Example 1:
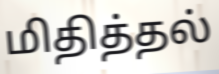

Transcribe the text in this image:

மிதித்தல்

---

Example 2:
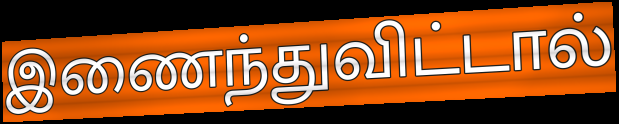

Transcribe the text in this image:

இணைந்துவிட்டால்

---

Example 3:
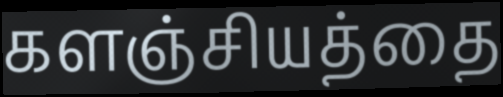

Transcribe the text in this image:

களஞ்சியத்தை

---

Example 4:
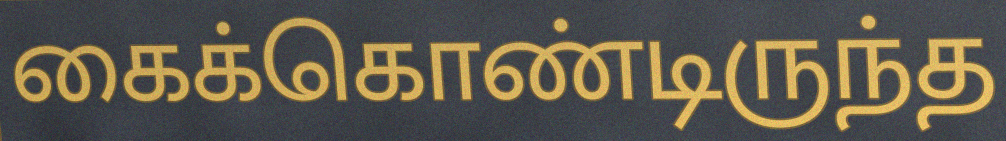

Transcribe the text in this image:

கைக்கொண்டிருந்த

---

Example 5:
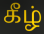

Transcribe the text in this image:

கீழ்